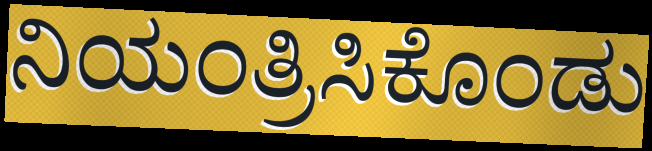
ನಿಯಂತ್ರಿಸಿಕೊಂಡು